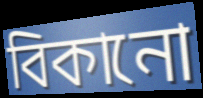
বিকানো